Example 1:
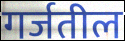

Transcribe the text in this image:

गर्जतील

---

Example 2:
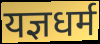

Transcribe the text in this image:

यज्ञधर्म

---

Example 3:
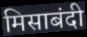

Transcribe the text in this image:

मिसाबंदी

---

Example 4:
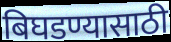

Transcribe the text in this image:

बिघडण्यासाठी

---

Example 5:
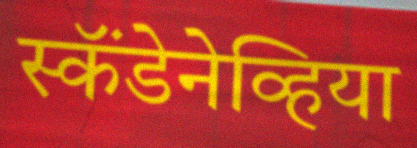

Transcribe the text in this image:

स्कॅंडेनेव्हिया